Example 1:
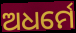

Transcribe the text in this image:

ଅଧର୍ମେ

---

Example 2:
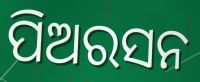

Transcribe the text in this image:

ପିଅରସନ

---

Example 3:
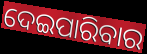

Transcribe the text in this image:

ଦେଇପାରିବାର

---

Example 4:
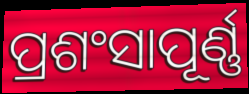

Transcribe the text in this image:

ପ୍ରଶଂସାପୂର୍ଣ୍ଣ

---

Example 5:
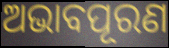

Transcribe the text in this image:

ଅଭାବପୂରଣ